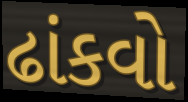
ઢાંકવો